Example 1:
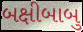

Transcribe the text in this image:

બક્ષીબાબુ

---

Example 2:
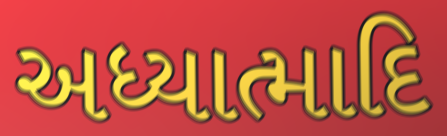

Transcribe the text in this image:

અધ્યાત્માદિ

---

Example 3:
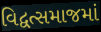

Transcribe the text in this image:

વિદ્વત્સમાજમાં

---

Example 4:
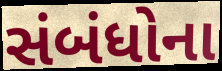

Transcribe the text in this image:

સંબંધોના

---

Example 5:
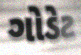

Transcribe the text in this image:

ગોડેટ